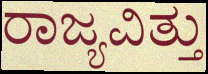
ರಾಜ್ಯವಿತ್ತು